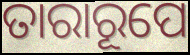
ତାରାରୂପେ